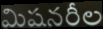
మిషనరీల